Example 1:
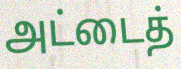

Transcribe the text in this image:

அட்டைத்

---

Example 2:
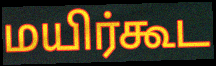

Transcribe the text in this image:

மயிர்கூட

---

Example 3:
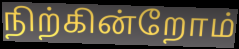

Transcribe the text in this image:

நிற்கின்றோம்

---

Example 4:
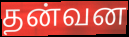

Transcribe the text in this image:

தன்வன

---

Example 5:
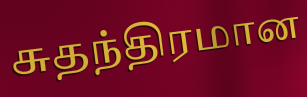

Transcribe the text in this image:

சுதந்திரமான